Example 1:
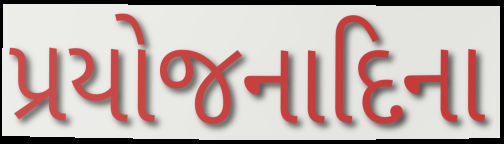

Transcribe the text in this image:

પ્રયોજનાદિના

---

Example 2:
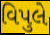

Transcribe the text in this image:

વિપુલે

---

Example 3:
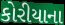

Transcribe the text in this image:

કોરીયાના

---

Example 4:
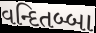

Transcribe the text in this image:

વન્દિતબ્બા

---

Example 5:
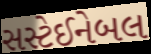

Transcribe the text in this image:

સસ્ટેઈનેબલ